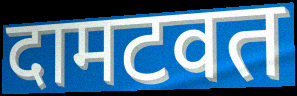
दामटवत